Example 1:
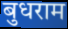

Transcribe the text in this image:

बुधराम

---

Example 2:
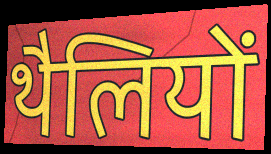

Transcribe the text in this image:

थैलियों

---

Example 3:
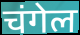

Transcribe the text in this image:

चंगेल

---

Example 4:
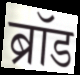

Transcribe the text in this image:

ब्रॉड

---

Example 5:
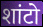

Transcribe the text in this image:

शांटो